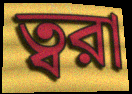
ত্বরা